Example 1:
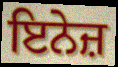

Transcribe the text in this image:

ਇਨੇਜ਼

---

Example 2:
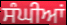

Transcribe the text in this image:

ਸੰਘੀਆਂ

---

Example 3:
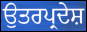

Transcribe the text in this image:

ਉਤਰਪ੍ਰਦੇਸ਼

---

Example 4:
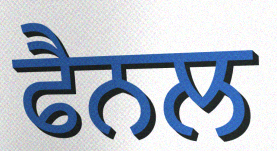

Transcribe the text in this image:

ਫੈਨਲ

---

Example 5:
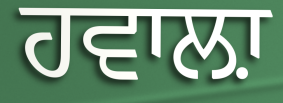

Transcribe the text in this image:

ਹਵਾਲ਼ਾ